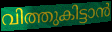
വിത്തുകിട്ടാൻ